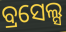
ବ୍ରସେଲ୍ସ